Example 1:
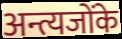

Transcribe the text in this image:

अन्त्यजोंके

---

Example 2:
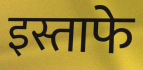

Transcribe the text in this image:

इस्ताफे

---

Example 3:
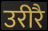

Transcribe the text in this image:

उरीरै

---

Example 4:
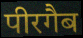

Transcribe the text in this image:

पीरगैब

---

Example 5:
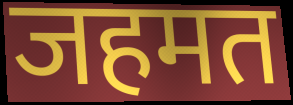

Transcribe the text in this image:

जहमत